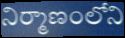
నిర్మాణంలోని